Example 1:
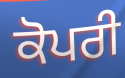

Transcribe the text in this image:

ਕੋਪਰੀ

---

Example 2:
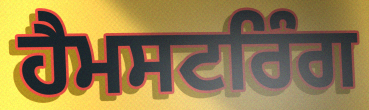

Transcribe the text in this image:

ਹੈਮਸਟਰਿੰਗ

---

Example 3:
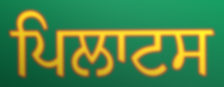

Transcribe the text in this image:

ਪਿਲਾਟਸ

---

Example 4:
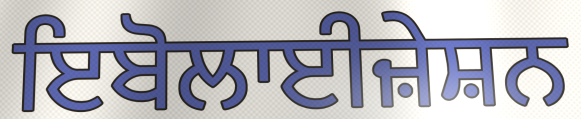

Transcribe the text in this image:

ਇਬੋਲਾਈਜ਼ੇਸ਼ਨ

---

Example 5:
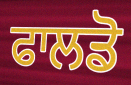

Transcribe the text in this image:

ਫਾਲਡੋ